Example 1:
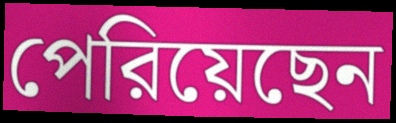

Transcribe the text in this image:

পেরিয়েছেন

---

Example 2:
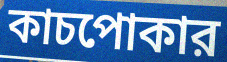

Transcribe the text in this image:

কাচপোকার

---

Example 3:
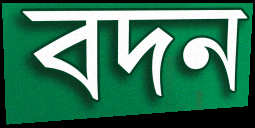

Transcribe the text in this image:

বদন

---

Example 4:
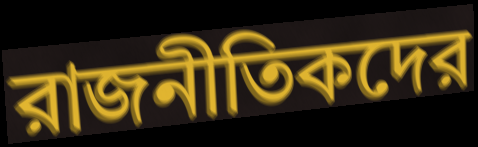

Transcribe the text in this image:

রাজনীতিকদের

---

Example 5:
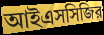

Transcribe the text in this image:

আইএসসিজির